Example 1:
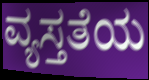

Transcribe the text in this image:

ವ್ಯಸ್ತತೆಯ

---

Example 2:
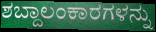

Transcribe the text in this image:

ಶಬ್ದಾಲಂಕಾರಗಳನ್ನು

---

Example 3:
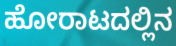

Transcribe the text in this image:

ಹೋರಾಟದಲ್ಲಿನ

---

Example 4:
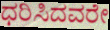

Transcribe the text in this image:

ಧರಿಸಿದವರೇ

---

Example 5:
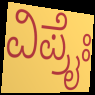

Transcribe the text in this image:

ವಿಪ್ರೈಃ